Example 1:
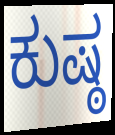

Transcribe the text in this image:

ಕುಷ್ಠ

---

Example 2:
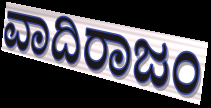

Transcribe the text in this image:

ವಾದಿರಾಜಂ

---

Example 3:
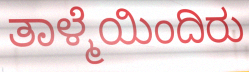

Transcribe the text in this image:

ತಾಳ್ಮೆಯಿಂದಿರು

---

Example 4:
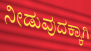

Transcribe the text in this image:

ನೀಡುವುದಕ್ಕಾಗಿ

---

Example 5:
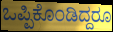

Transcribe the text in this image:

ಒಪ್ಪಿಕೊಂಡಿದ್ದರೂ